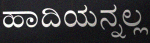
ಹಾದಿಯನ್ನಲ್ಲ